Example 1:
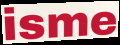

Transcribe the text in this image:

isme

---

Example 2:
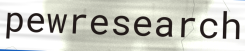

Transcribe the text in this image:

pewresearch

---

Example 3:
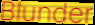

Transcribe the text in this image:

Blunder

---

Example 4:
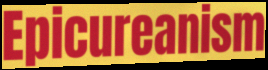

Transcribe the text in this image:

Epicureanism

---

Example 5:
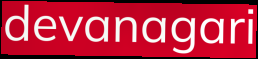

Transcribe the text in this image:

devanagari